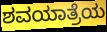
ಶವಯಾತ್ರೆಯ